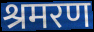
श्रमरण